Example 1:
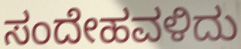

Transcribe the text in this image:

ಸಂದೇಹವಳಿದು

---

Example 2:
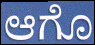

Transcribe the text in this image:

ಆಗೊ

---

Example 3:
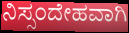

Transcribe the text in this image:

ನಿಸ್ಸಂದೇಹವಾಗಿ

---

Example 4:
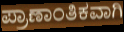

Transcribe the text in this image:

ಪ್ರಾಣಾಂತಿಕವಾಗಿ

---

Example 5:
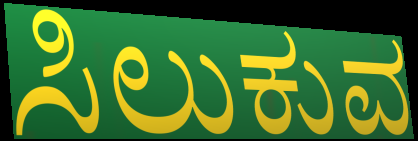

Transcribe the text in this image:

ಸಿಲುಕುವ